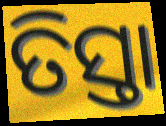
ତିସ୍ତା